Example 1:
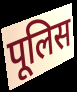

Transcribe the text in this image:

पूलिस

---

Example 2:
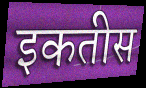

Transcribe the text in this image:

इकतीस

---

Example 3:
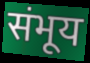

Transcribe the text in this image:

संभूय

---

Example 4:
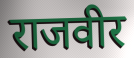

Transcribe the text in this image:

राजवीर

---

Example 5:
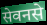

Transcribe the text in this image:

सेवनसे